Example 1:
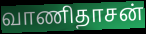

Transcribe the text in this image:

வாணிதாசன்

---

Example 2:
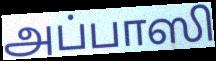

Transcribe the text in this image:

அப்பாஸி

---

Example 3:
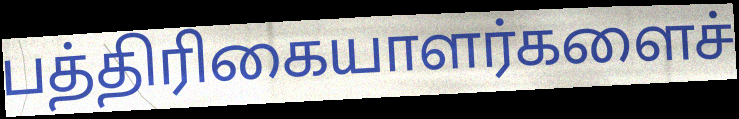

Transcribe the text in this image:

பத்திரிகையாளர்களைச்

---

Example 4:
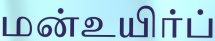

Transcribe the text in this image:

மன்உயிர்ப்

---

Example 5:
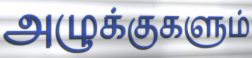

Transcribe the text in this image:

அழுக்குகளும்